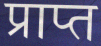
प्राप्‍त